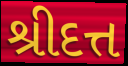
શ્રીદત્ત